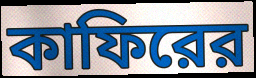
কাফিরের